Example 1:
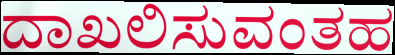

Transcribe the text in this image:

ದಾಖಲಿಸುವಂತಹ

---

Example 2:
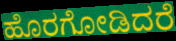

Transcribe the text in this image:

ಹೊರಗೋಡಿದರೆ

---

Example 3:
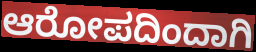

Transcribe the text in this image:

ಆರೋಪದಿಂದಾಗಿ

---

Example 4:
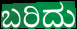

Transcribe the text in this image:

ಬರಿದು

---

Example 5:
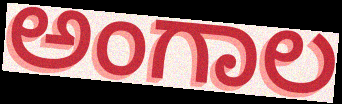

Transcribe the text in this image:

ಅಂಗಾಲ